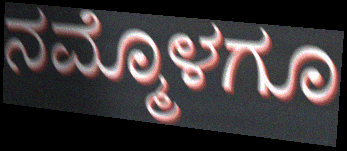
ನಮ್ಮೊಳಗೂ